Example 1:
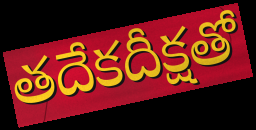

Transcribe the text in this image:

తదేకదీక్షతో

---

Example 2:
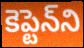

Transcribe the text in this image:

కెప్టెన్‌ని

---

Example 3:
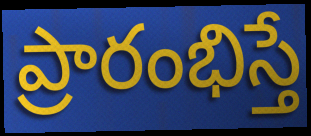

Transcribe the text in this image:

ప్రారంభిస్తే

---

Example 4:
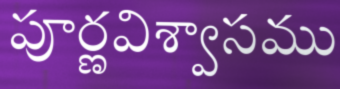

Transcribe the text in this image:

పూర్ణవిశ్వాసము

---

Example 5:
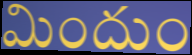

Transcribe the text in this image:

మిందుం